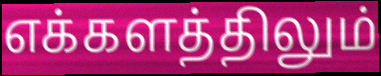
எக்களத்திலும்